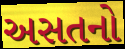
અસતનો